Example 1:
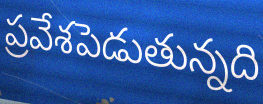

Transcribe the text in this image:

ప్రవేశపెడుతున్నది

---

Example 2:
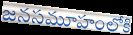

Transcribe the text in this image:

జనసమూహంలోకి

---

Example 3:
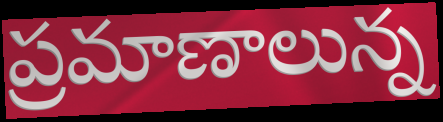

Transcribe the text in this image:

ప్రమాణాలున్న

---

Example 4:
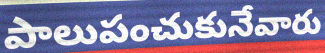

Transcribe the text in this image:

పాలుపంచుకునేవారు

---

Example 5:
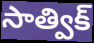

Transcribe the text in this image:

సాత్విక్